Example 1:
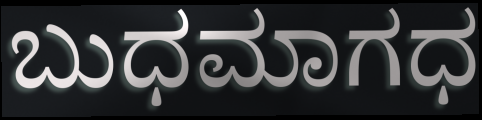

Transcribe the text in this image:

ಬುಧಮಾಗಧ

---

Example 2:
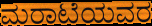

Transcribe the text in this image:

ಮರಾಟೆಯವರ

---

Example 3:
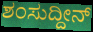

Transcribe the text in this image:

ಶಂಸುದ್ದೀನ್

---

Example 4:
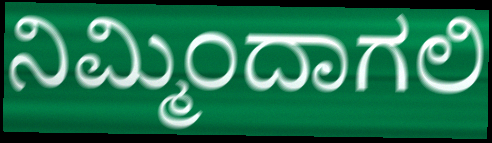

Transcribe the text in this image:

ನಿಮ್ಮಿಂದಾಗಲಿ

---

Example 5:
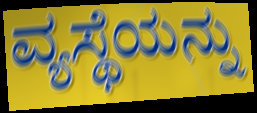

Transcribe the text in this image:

ವ್ಯಸ್ಥೆಯನ್ನು